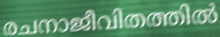
രചനാജീവിതത്തിൽ